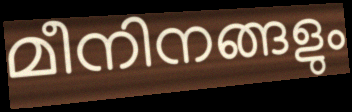
മീനിനങ്ങളും